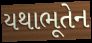
યથાભૂતેન